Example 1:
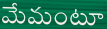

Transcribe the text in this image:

మేమంటూ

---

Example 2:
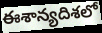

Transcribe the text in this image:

ఈశాన్యదిశలో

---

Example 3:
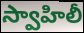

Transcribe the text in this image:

స్వాహిలీ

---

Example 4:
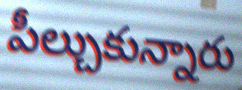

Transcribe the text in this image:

పీల్చుకున్నారు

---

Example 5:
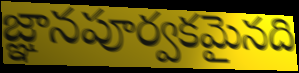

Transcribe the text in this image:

జ్ఞానపూర్వకమైనది